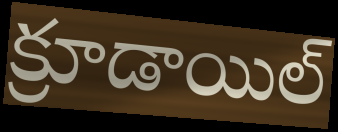
క్రూడాయిల్